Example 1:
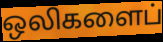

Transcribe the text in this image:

ஒலிகளைப்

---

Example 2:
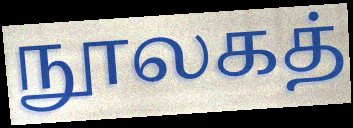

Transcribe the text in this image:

நூலகத்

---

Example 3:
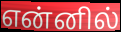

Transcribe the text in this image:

என்னில்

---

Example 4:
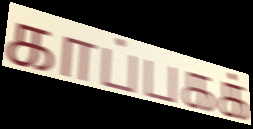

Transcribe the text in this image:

காப்பகக்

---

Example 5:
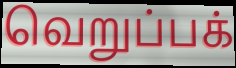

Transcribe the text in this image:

வெறுப்பக்